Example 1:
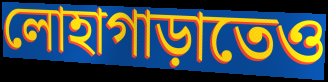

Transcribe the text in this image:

লোহাগাড়াতেও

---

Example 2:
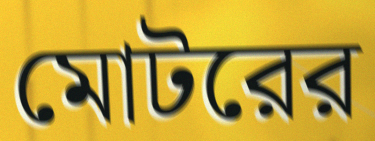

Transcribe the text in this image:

মোটরের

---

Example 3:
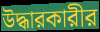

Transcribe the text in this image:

উদ্ধারকারীর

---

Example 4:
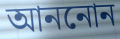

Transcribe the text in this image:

আননোন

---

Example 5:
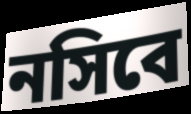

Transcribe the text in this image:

নসিবে